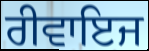
ਰੀਵਾਇਜ